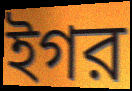
ইগর